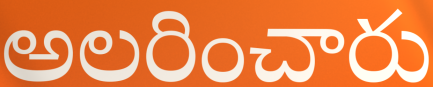
అలరించారు